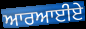
ਆਰਆਈਏ